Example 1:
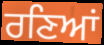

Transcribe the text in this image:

ਰਣਿਆਂ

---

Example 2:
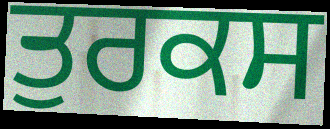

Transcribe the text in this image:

ਤੁਰਕਸ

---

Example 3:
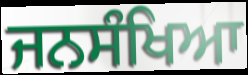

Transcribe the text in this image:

ਜਨਸੰਖਿਆ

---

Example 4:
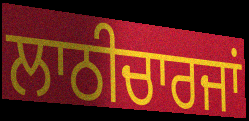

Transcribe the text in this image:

ਲਾਠੀਚਾਰਜਾਂ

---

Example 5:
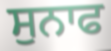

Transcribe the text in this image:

ਸੁਨਾਫ